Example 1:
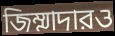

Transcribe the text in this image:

জিম্মাদারও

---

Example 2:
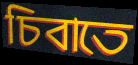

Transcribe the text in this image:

চিবাতে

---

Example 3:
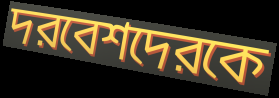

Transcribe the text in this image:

দরবেশদেরকে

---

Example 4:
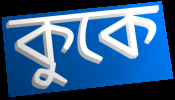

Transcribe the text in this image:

কুকে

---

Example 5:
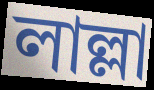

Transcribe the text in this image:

লাল্লা